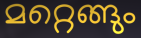
മറ്റെങ്ങും